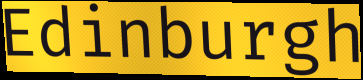
Edinburgh